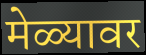
मेळ्यावर